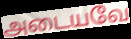
அடையவே